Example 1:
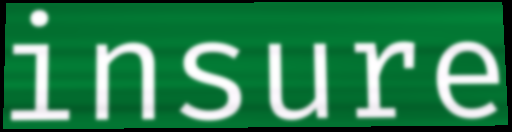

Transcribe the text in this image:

insure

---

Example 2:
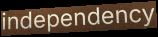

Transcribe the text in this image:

independency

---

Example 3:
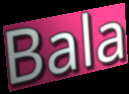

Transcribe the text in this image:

Bala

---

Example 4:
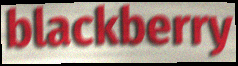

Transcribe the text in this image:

blackberry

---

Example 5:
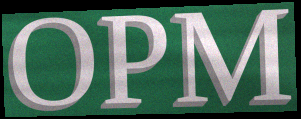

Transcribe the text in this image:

OPM